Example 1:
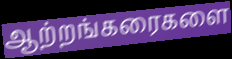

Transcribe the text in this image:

ஆற்றங்கரைகளை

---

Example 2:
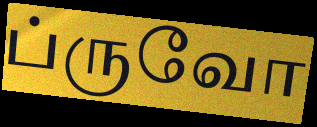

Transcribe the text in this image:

ப்ருவோ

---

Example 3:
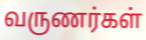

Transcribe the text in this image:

வருணர்கள்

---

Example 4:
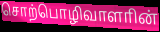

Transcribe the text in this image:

சொற்பொழிவாளரின்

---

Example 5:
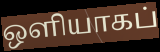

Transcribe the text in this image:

ஒளியாகப்